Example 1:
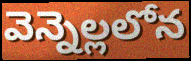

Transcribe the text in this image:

వెన్నెల్లలోన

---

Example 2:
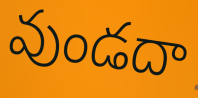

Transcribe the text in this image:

వుండదా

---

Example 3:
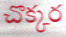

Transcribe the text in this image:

చొక్కర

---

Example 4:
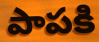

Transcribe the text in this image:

పాపకి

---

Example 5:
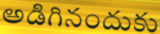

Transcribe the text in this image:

అడిగినందుకు